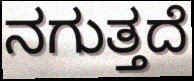
ನಗುತ್ತದೆ